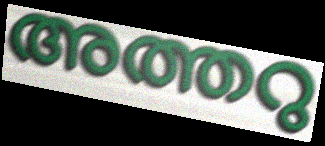
അത്തറു